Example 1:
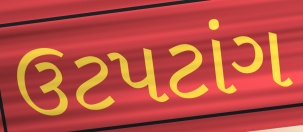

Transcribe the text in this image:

ઉટપટાંગ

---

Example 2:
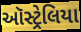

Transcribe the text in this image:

ઑસ્ટ્રેલિયા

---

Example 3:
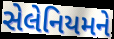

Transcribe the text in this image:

સેલેનિયમને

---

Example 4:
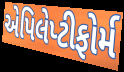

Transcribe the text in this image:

એપિલેપ્ટીફોર્મ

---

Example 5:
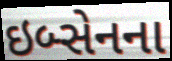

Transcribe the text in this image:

ઇબ્સેનના